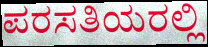
ಪರಸತಿಯರಲ್ಲಿ